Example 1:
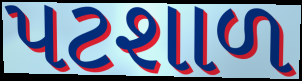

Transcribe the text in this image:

પટશાળ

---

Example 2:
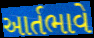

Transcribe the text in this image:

આર્તભાવે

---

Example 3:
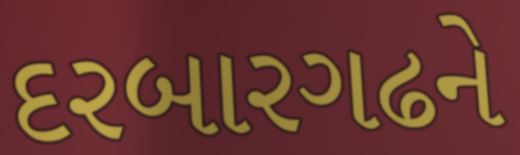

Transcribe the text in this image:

દરબારગઢને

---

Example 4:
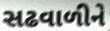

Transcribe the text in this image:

સઢવાળીને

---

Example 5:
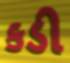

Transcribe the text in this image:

કડી